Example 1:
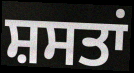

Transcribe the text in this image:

ਸ਼ਸਤਾਂ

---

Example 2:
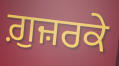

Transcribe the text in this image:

ਗ਼ੁਜ਼ਰਕੇ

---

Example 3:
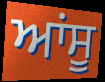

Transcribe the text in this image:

ਆਂਸੂ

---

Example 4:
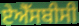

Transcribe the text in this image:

ਏਐੱਸਬੀਸੀ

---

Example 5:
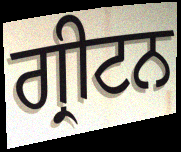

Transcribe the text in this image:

ਗ੍ਰੀਟਨ